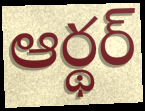
ఆర్థర్